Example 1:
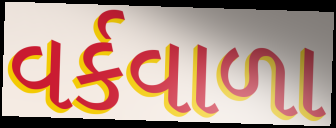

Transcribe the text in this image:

વર્કવાળા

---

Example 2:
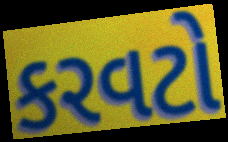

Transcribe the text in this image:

કરવટો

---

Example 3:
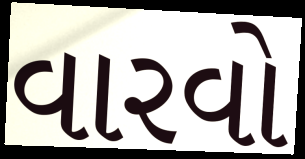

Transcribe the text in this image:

વારવો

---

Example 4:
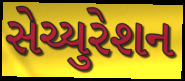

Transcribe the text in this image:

સેચ્યુરેશન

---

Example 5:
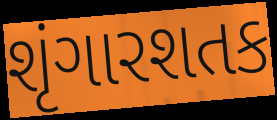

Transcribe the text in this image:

શૃંગારશતક